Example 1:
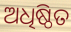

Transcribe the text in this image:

ଅଧିଷ୍ଠିତ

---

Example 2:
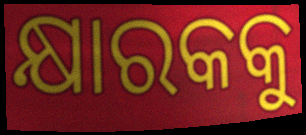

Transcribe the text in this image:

କ୍ଷାରକକୁ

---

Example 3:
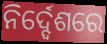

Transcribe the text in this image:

ନିର୍ଦ୍ଦେଶରେ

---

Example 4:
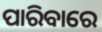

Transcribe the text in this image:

ପାରିବାରେ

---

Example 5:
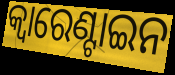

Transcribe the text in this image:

କ୍ୱାରେଣ୍ଟାଇନ